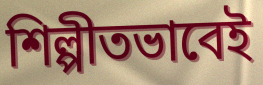
শিল্পীতভাবেই